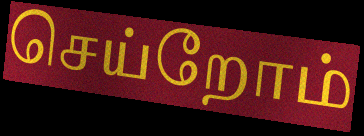
செய்றோம்